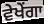
ਵੇਖੇਂਗਾ